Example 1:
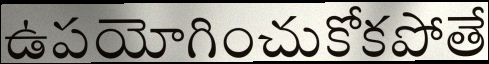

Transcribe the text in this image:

ఉపయోగించుకోకపోతే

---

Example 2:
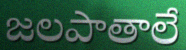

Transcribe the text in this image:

జలపాతాలే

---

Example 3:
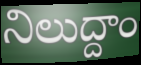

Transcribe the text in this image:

నిలుద్దాం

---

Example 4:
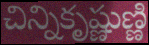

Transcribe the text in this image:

చిన్నికృష్ణుణ్ణి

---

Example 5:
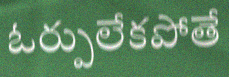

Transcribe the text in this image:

ఓర్పులేకపోతే